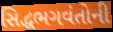
સિદ્ધભગવંતોની